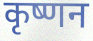
कृष्णन